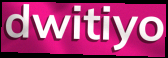
dwitiyo